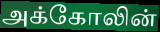
அக்கோலின்